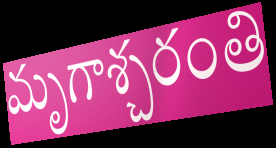
మృగాశ్చరంతి